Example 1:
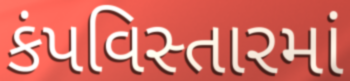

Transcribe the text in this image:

કંપવિસ્તારમાં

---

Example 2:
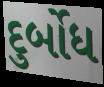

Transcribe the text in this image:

દુર્બોધ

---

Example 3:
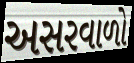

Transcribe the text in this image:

અસરવાળો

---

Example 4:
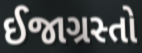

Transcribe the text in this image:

ઈજાગ્રસ્તો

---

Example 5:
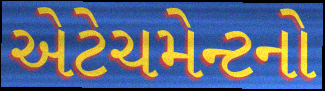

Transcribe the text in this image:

એટેચમેન્ટનો